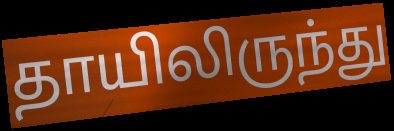
தாயிலிருந்து